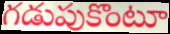
గడుపుకొంటూ